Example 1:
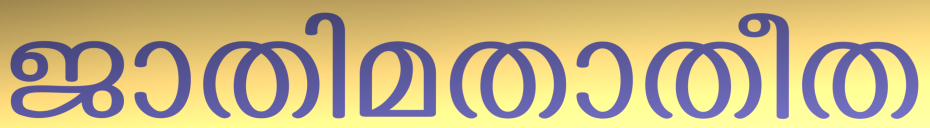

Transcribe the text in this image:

ജാതിമതാതീത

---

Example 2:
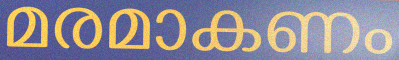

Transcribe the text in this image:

മരമാകണം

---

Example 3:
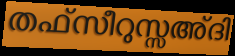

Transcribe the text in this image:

തഫ്സീറുസ്സഅ്ദി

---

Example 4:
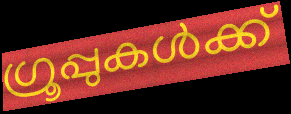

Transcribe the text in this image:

ഗ്രൂപ്പുകൾക്ക്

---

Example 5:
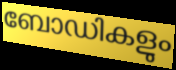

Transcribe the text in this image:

ബോഡികളും